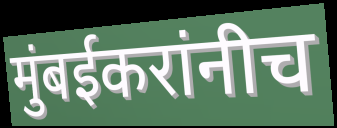
मुंबईकरांनीच